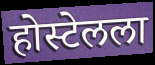
होस्टेलला